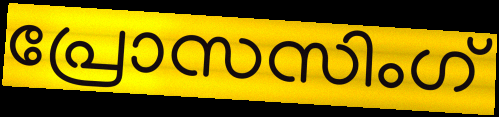
പ്രോസസിംഗ്